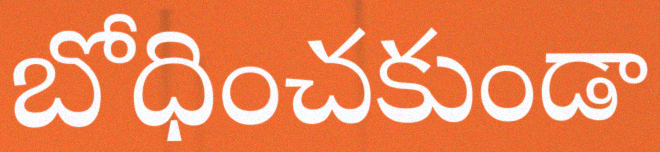
బోధించకుండా